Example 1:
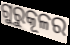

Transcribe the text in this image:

ଗୁରୁକୂଳର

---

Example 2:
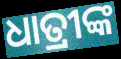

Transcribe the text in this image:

ଧାତ୍ରୀଙ୍କ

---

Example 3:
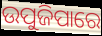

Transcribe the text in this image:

ଉପୁଜିପାରେ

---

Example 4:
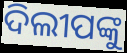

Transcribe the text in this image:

ଦିଲୀପଙ୍କୁ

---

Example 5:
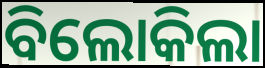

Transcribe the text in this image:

ବିଲୋକିଲା